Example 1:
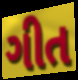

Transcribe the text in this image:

ગીત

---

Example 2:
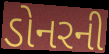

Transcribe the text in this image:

ડોનરની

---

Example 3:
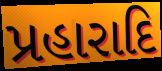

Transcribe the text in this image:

પ્રહારાદિ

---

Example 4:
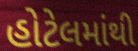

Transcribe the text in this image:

હોટેલમાંથી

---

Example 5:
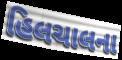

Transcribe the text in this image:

હિલચાલના